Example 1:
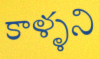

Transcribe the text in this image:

కాళ్ళని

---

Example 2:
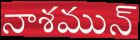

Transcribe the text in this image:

నాశమున్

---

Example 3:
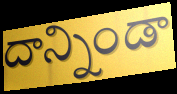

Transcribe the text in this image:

దాన్నిండా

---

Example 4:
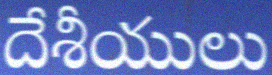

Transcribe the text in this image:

దేశీయులు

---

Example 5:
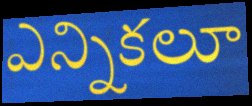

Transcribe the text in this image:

ఎన్నికలూ